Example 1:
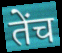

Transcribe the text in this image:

तेंच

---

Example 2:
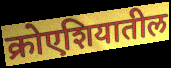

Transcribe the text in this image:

क्रोएशियातील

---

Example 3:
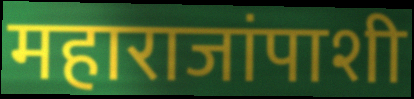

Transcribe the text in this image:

महाराजांपाशी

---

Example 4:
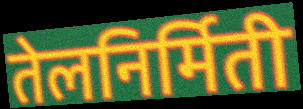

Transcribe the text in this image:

तेलनिर्मिती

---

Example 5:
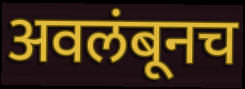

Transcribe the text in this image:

अवलंबूनच